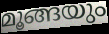
മൂങ്ങയും